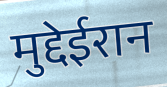
मुद्देईरान